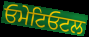
ਓਮੇਟਿਓਟਲ